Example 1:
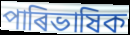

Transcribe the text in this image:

পাৰিভাষিক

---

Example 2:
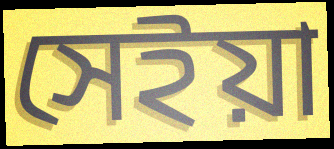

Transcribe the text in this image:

সেইয়া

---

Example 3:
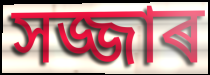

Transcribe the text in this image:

সজ্জাৰ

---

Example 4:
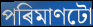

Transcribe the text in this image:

পৰিমাণটো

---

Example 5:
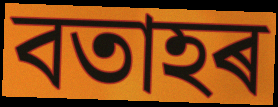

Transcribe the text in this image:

বতাহৰ